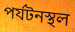
পর্যটনস্থল